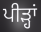
ਪੀੜ੍ਹਾਂ